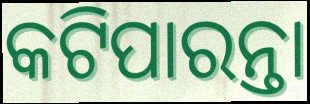
କଟିପାରନ୍ତା